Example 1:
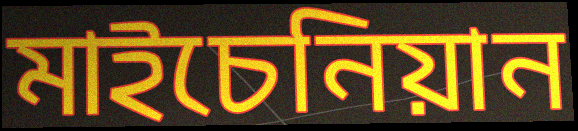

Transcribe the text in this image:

মাইচেনিয়ান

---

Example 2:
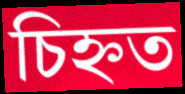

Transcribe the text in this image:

চিহ্নত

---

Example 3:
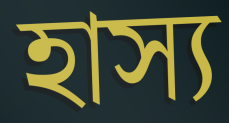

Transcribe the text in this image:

হাস্য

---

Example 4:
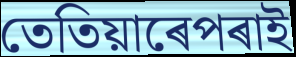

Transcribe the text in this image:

তেতিয়াৰেপৰাই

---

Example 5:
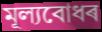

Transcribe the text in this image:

মূল্যবোধৰ